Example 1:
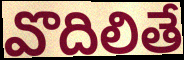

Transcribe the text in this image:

వొదిలితే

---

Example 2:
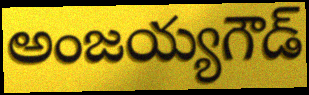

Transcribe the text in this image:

అంజయ్యగౌడ్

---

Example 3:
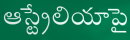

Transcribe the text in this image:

ఆస్ట్రేలియాపై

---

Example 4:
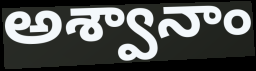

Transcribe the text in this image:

అశ్వానాం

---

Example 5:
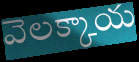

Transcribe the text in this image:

వెలక్కాయ